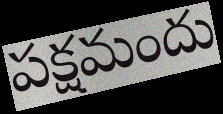
పక్షమందు